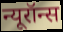
न्यूरॉन्स